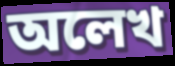
অলেখ